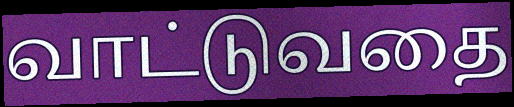
வாட்டுவதை